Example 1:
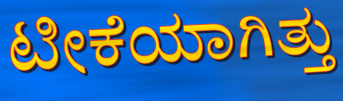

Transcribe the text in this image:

ಟೀಕೆಯಾಗಿತ್ತು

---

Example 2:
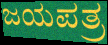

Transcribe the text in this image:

ಜಯಪತ್ರ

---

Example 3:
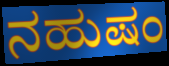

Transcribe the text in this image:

ನಹುಷಂ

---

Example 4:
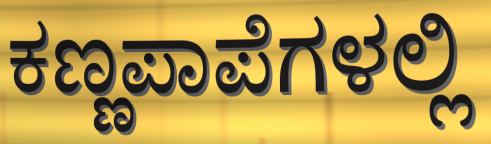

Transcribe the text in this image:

ಕಣ್ಣಪಾಪೆಗಳಲ್ಲಿ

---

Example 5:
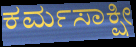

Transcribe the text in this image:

ಕರ್ಮಸಾಕ್ಷೀ